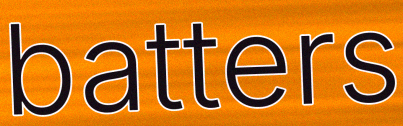
batters